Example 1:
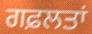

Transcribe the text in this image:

ਗਫ਼ਲਤਾਂ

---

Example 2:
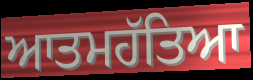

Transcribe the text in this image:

ਆਤਮਹੱਤਿਆ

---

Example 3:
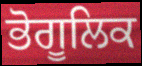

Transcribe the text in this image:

ਭੋਗੂਲਿਕ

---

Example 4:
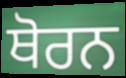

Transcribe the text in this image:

ਥੋਰਨ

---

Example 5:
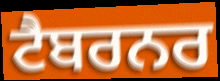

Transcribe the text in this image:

ਟੈਬਰਨਰ